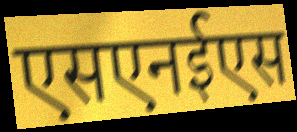
एसएनईएस